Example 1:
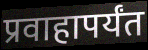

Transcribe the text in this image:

प्रवाहापर्यंत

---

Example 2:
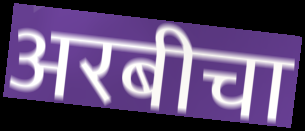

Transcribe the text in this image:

अरबीचा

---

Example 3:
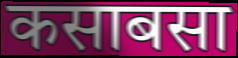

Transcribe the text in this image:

कसाबसा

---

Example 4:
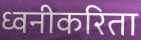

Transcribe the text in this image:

ध्वनीकरिता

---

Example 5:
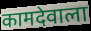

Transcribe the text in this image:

कामदेवाला